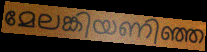
മേലങ്കിയണിഞ്ഞ